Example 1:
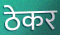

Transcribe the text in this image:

ठेकर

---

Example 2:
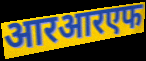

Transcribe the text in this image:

आरआरएफ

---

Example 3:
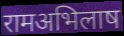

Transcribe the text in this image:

रामअभिलाष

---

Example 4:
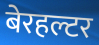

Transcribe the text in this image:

बेरहल्टर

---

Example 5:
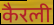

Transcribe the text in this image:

कैरली